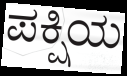
ಪಕ್ಷಿಯ